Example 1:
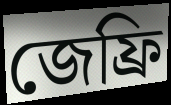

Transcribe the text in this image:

জেফ্রি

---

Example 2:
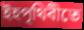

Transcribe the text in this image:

ইহপৃথিবীতে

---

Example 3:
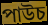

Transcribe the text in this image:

পাউচ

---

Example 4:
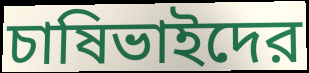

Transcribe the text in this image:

চাষিভাইদের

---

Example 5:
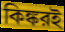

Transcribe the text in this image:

কিঙ্করই